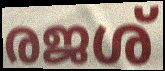
രജശ്